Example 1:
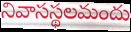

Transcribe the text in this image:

నివాసస్థలమందు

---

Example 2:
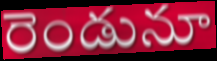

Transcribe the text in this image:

రెండునూ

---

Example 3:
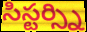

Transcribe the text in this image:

సిస్టర్స్ని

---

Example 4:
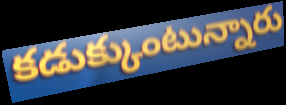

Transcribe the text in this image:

కడుక్కుంటున్నారు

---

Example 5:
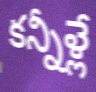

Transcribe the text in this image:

కన్నీళ్లే